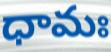
ధామః